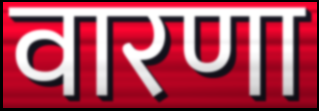
वारणा